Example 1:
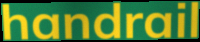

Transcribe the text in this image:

handrail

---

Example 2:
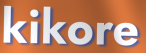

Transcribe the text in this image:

kikore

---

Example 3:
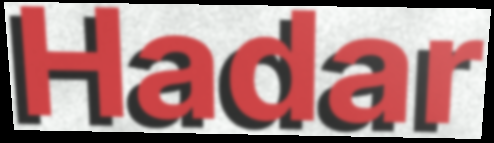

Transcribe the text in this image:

Hadar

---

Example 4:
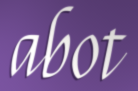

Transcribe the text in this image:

abot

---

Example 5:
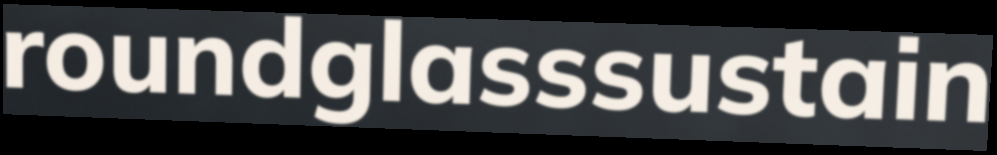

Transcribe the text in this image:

roundglasssustain